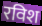
रविश